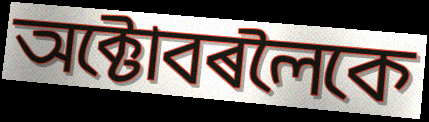
অক্টোবৰলৈকে